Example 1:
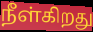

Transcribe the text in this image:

நீள்கிறது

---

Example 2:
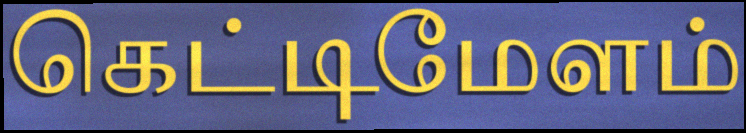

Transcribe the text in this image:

கெட்டிமேளம்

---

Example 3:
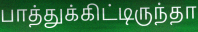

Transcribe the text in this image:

பாத்துக்கிட்டிருந்தா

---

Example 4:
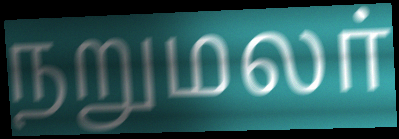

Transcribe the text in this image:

நறுமலர்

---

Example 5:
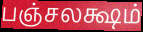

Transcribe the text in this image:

பஞ்சலக்ஷம்